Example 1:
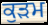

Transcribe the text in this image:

ਕੁੜਮ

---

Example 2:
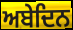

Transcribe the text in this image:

ਅਬੇਦਿਨ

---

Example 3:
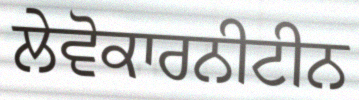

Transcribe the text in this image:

ਲੇਵੋਕਾਰਨੀਟੀਨ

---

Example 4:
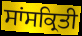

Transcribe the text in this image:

ਸਾਂਸਕ੍ਰਿਤੀ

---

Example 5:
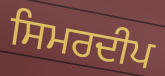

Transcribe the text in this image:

ਸਿਮਰਦੀਪ